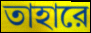
তাহারে